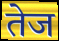
तेज